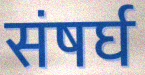
संषर्घ